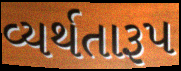
વ્યર્થતારૂપ